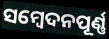
ସମ୍ବେଦନପୂର୍ଣ୍ଣ